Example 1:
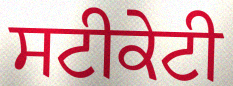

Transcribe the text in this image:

ਸਟੀਕੇਟੀ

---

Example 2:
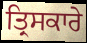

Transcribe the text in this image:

ਤ੍ਰਿਸਕਾਰੇ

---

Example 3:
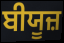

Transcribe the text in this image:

ਬੀਯੂਜ਼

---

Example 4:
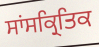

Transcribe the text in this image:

ਸਾਂਸਕ੍ਰਿਤਿਕ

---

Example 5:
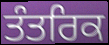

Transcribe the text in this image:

ਤੰਤਰਿਕ